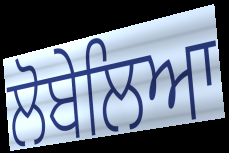
ਲੋਬੇਲਿਆ